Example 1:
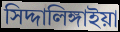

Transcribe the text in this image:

সিদ্দালিঙ্গাইয়া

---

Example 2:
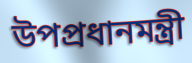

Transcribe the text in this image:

উপপ্রধানমন্ত্রী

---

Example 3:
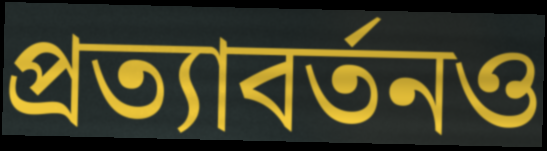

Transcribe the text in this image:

প্রত্যাবর্তনও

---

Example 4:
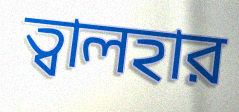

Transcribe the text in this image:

ত্বালহার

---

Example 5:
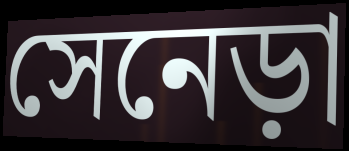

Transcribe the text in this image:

সেনেড়া